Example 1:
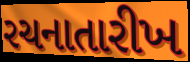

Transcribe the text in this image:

રચનાતારીખ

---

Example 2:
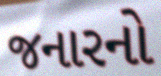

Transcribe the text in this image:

જનારનો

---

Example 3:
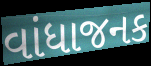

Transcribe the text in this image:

વાંધાજનક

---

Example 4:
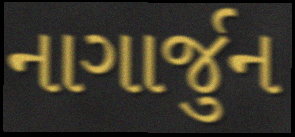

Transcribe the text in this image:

નાગાર્જુન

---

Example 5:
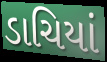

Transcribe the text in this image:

ડાચિયાં